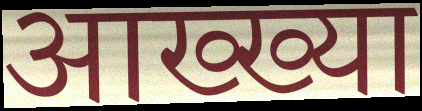
आख्ख्या